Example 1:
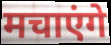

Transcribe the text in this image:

मचाएंगे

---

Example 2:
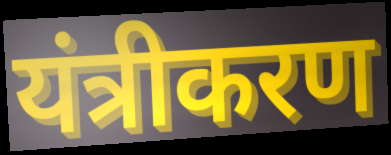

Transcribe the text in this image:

यंत्रीकरण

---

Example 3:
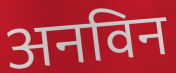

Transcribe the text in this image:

अनविन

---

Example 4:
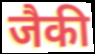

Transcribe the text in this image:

जैकी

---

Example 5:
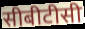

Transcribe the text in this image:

सीबीटीसी